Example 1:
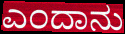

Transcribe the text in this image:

ಎಂದಾನು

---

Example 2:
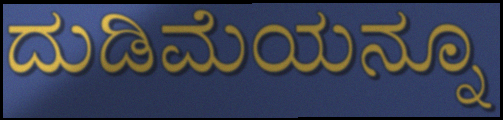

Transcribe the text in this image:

ದುಡಿಮೆಯನ್ನೂ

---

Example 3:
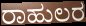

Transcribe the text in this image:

ರಾಹುಲರ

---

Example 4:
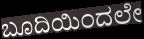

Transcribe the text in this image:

ಬೂದಿಯಿಂದಲೇ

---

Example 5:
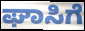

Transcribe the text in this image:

ಘಾಸಿಗೆ